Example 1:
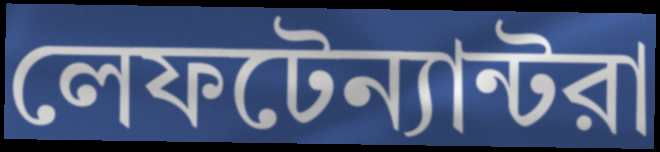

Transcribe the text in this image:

লেফটেন্যান্টরা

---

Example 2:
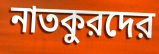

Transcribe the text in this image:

নাতকুরদের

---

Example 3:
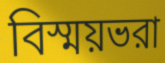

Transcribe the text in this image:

বিস্ময়ভরা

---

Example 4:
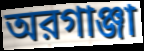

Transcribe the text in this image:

অরগাঞ্জা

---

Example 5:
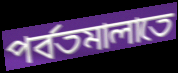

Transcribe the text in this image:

পর্বতমালাতে